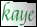
kaye